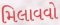
મિલાવવો